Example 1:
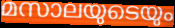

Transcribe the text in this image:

മസാലയുടെയും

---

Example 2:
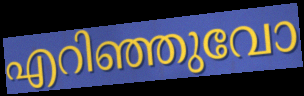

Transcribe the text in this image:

എറിഞ്ഞുവോ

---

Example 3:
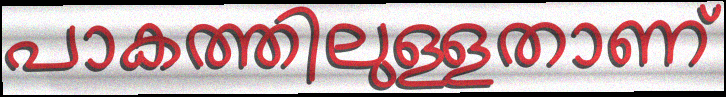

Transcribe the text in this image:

പാകത്തിലുള്ളതാണ്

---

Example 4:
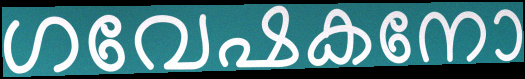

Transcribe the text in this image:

ഗവേഷകനോ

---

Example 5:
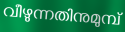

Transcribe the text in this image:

വീഴുന്നതിനുമുമ്പ്